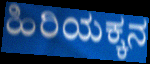
ಹಿರಿಯಕ್ಕನ